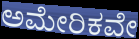
ಅಮೇರಿಕವೇ